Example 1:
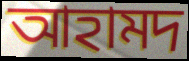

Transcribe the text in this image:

আহামদ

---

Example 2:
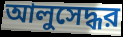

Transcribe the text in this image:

আলুসেদ্ধর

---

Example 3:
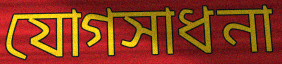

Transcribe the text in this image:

যোগসাধনা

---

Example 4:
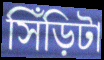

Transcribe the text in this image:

সিঁড়িটা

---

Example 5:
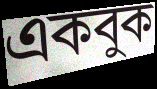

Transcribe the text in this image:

একবুক